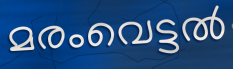
മരംവെട്ടൽ